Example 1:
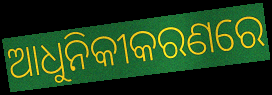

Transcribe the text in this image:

ଆଧୁନିକୀକରଣରେ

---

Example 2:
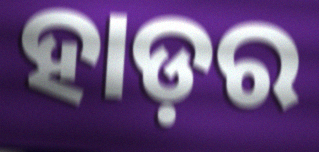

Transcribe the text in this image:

ହାଡ଼ର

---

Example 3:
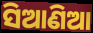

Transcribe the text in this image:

ସିଆଣିଆ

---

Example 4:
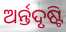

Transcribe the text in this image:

ଅର୍ନ୍ତଦୃଷ୍ଟି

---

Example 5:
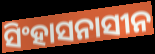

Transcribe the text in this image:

ସିଂହାସନାସୀନ